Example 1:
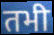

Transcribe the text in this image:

तभी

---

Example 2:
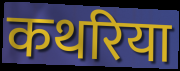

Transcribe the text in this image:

कथरिया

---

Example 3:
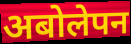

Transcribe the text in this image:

अबोलेपन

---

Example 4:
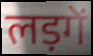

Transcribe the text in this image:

लड़गें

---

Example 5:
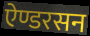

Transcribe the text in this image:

ऐण्डरसन